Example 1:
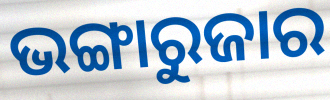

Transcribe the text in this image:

ଭଙ୍ଗାରୁଜାର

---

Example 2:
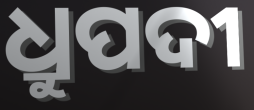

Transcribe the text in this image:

ଧ୍ରୁପଦୀ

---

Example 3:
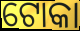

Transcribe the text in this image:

ଟୋକା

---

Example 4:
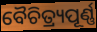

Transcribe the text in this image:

ବୈଚିତ୍ର୍ୟପୂର୍ଣ୍ଣ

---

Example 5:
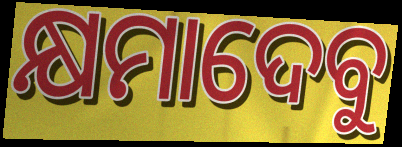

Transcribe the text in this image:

କ୍ଷମାଦେବୁ